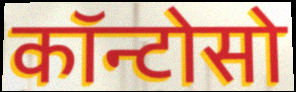
कॉन्टोसो